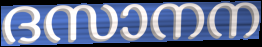
ദസാനന